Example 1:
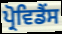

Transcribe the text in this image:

ਪ੍ਰੋਵਿਡੈਂਸ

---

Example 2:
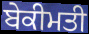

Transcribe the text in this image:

ਬੇਕੀਮਤੀ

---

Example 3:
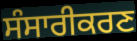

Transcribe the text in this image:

ਸੰਸਾਰੀਕਰਣ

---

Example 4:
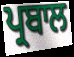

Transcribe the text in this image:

ਪ੍ਰਬਾਲ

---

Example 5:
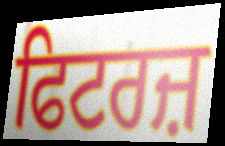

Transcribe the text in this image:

ਫਿਟਰਜ਼